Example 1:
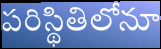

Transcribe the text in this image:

పరిస్థితిలోనూ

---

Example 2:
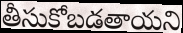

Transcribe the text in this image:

తీసుకోబడతాయని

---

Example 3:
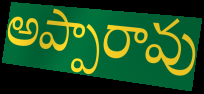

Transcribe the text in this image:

అప్పారావు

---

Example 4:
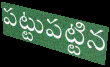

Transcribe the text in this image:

పట్టుపట్టిన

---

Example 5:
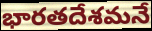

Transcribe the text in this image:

భారతదేశమనే